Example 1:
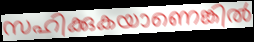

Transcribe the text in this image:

സഹിക്കുകയാണെങ്കിൽ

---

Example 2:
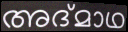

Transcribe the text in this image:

അദ്മാഥ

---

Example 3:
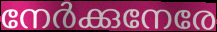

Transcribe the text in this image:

നേർക്കുനേരേ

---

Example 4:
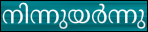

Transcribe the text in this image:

നിന്നുയർന്നു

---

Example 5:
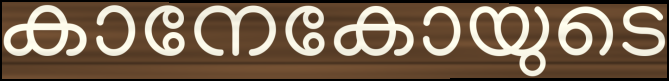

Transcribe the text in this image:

കാനേകോയുടെ